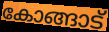
കോങ്ങാട്